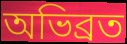
অভিব্রত